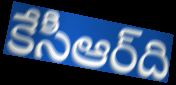
కేసీఆర్‌ది